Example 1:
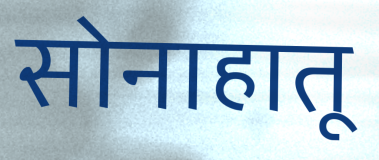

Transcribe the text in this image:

सोनाहातू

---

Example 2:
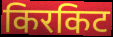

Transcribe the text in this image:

किरकिट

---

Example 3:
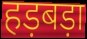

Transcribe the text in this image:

हड़बड़ा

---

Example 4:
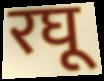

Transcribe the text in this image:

रघू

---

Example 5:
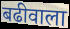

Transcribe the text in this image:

बढीवाला